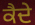
ਕੈਦੇ